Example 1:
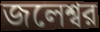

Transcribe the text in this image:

জলেশ্বর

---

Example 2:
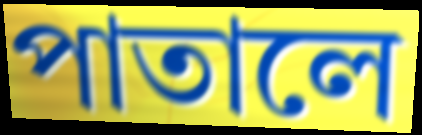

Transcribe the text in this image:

পাতালে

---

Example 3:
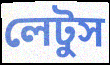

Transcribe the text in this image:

লেটুস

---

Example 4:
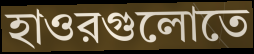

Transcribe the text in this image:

হাওরগুলোতে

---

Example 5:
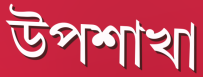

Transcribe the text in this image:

উপশাখা